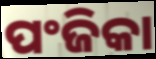
ପଂଜିକା